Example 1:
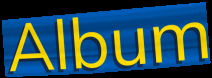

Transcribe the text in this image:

Album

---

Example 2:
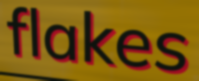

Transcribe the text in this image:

flakes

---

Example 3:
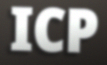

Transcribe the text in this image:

ICP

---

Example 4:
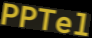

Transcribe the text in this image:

PPTel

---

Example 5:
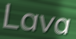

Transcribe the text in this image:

Lava